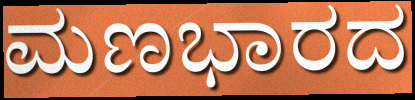
ಮಣಭಾರದ